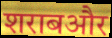
शराबऔर